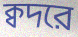
ক্বদরে